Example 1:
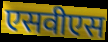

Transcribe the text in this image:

एसवीएस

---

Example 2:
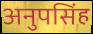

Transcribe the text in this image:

अनुपसिंह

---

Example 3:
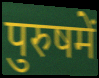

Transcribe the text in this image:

पुरुषमें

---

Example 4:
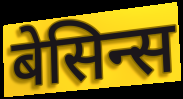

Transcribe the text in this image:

बेसिन्स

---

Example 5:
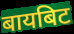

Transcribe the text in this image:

बायबिट